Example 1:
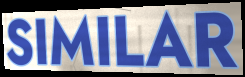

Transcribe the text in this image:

SIMILAR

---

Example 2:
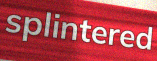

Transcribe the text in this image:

splintered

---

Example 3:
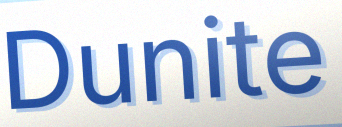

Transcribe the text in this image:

Dunite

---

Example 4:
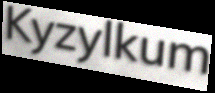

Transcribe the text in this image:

Kyzylkum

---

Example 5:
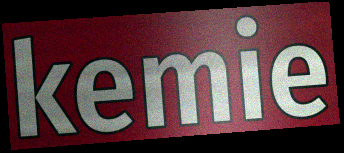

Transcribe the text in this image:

kemie